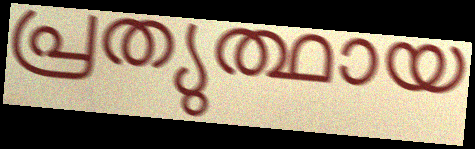
പ്രത്യുത്ഥായ